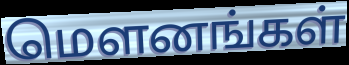
மௌனங்கள்